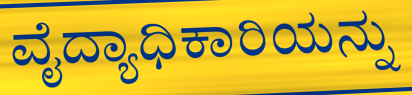
ವೈದ್ಯಾಧಿಕಾರಿಯನ್ನು